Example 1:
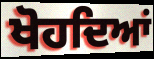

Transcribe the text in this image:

ਖੋਹਦਿਆਂ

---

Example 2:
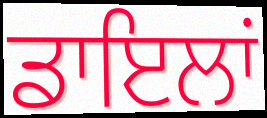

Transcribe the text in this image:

ਡਾਇਲਾਂ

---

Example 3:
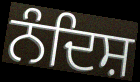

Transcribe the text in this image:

ਨੰਦਿਸ਼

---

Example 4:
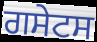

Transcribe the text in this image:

ਗਸੇਟਸ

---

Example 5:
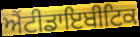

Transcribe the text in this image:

ਐਂਟੀਡਾਇਬੀਟਿਕ